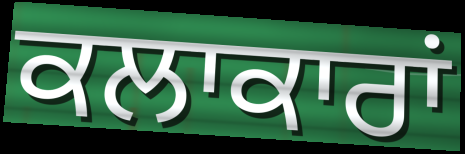
ਕਲਾਕਾਰਾਂ